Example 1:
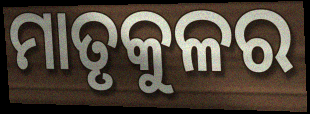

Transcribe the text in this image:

ମାତୃକୁଳର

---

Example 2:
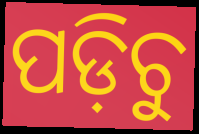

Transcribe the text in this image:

ପଡ଼ିଚୁ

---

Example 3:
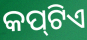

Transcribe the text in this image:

କପ୍‍ଟିଏ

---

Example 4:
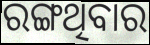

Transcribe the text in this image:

ରଙ୍ଗଥିବାର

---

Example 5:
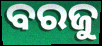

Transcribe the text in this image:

ବରଜୁ